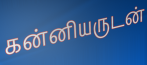
கன்னியருடன்